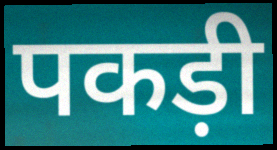
पकड़ी